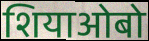
शियाओबो